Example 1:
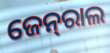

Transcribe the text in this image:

ଜେନ୍‌ରାଲ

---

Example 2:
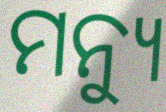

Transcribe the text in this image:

ମନ୍ୟୁ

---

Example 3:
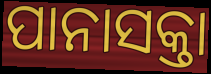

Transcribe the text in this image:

ପାନାସକ୍ତା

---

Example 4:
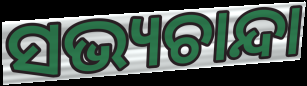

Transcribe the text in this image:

ସଭ୍ୟଚାନ୍ଦା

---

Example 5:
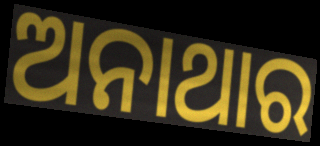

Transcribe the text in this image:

ଅନାଥାର